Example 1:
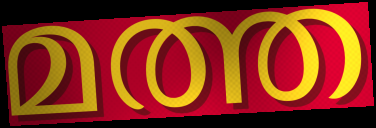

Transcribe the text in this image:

മത്ത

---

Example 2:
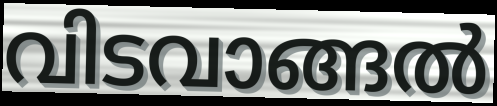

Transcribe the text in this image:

വിടവാങ്ങൽ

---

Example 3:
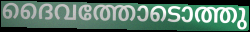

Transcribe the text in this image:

ദൈവത്തോടൊത്തു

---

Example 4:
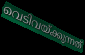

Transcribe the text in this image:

വെടിവയ്ക്കുന്നത്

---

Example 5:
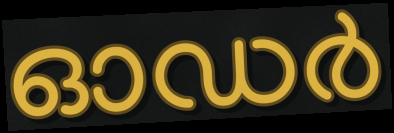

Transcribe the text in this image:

ഓഡർ